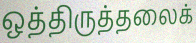
ஒத்திருத்தலைக்